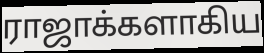
ராஜாக்களாகிய